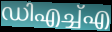
ഡിഎച്ച്എ